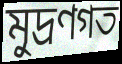
মুদ্রণগত